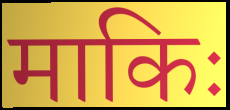
माकिः